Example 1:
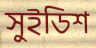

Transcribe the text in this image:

সুইডিশ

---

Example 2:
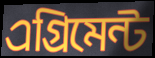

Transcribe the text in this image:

এগ্রিমেন্ট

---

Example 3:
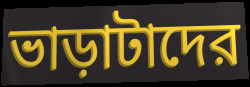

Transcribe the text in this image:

ভাড়াটাদের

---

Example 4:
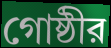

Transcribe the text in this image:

গোষ্ঠীর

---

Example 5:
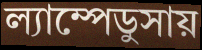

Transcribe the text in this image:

ল্যাম্পেডুসায়